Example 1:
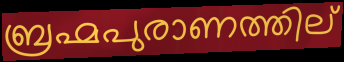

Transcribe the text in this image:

ബ്രഹ്മപുരാണത്തില്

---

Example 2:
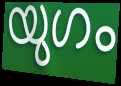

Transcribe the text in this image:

യുഗം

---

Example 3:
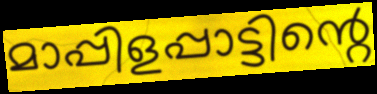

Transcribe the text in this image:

മാപ്പിളപ്പാട്ടിന്റെ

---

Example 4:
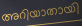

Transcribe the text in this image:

അറിയാതായി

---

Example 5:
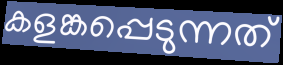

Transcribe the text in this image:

കളങ്കപ്പെടുന്നത്